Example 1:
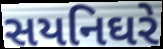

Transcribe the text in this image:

સયનિઘરે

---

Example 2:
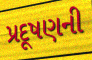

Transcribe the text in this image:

પ્રદૂષણની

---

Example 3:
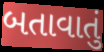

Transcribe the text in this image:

બતાવાતું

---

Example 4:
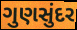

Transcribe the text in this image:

ગુણસુંદર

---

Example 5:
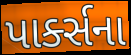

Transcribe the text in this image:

પાર્ક્સના